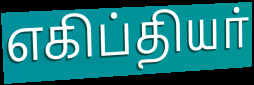
எகிப்தியர்